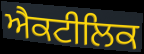
ਐਕਟੀਲਿਕ